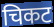
चिकट